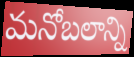
మనోబలాన్ని